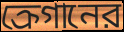
ক্রেগানের